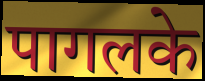
पागलके